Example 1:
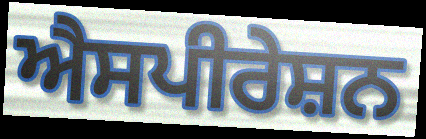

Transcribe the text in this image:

ਐਸਪੀਰੇਸ਼ਨ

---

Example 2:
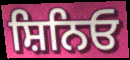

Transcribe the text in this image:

ਸ਼ਿਨਿਓ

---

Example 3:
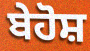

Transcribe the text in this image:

ਬੇਹੋਸ਼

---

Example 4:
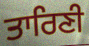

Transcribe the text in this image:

ਤਾਰਿਣੀ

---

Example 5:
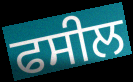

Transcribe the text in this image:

ਫਸੀਲ